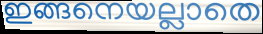
ഇങ്ങനെയല്ലാതെ